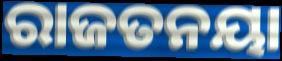
ରାଜତନୟା